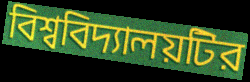
বিশ্ববিদ্যালয়টির